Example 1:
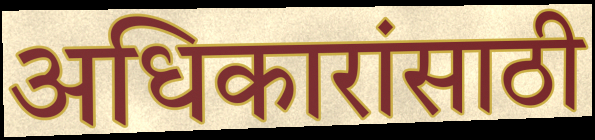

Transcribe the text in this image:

अधिकारांसाठी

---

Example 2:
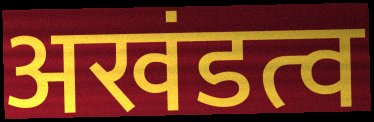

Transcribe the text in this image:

अखंडत्व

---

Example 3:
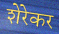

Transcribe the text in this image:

शेरेकर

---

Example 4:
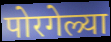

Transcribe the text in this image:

पोरगेल्या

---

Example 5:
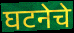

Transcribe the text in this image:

घटनेचे